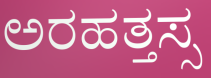
ಅರಹತ್ತಸ್ಸ